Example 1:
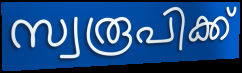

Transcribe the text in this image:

സ്വരൂപിക്ക്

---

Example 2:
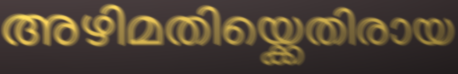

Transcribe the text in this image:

അഴിമതിയ്ക്കെതിരായ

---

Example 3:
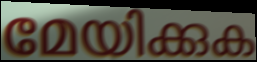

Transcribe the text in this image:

മേയിക്കുക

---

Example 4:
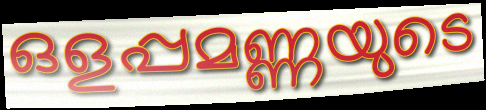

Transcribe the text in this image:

ഒളപ്പമണ്ണയുടെ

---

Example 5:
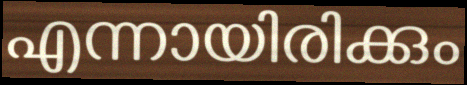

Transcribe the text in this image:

എന്നായിരിക്കും